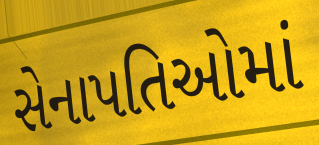
સેનાપતિઓમાં